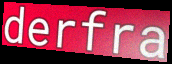
derfra